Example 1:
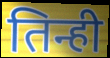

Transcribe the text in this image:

तिन्ही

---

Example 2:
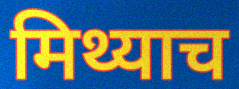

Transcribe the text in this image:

मिथ्याच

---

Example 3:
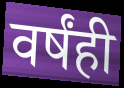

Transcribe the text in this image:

वर्षंही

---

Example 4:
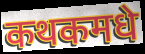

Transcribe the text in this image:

कथकमधे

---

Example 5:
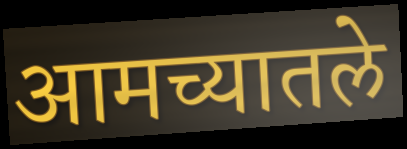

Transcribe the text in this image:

आमच्यातले